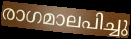
രാഗമാലപിച്ചു